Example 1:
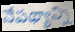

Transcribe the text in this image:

నేపథ్యాన్ని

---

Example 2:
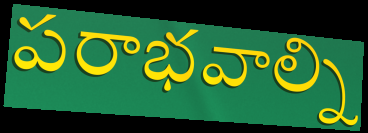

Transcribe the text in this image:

పరాభవాల్ని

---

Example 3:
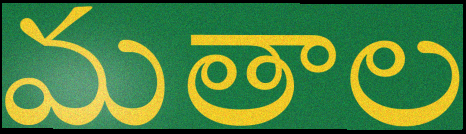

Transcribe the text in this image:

మతాల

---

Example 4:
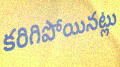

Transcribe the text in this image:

కరిగిపోయినట్లు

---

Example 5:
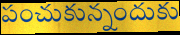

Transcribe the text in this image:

పంచుకున్నందుకు